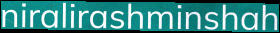
niralirashminshah